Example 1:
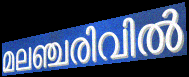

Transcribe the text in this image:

മലഞ്ചരിവിൽ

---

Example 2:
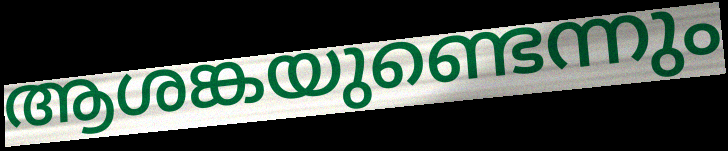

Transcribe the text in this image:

ആശങ്കയുണ്ടെന്നും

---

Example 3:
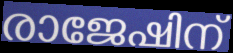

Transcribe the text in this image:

രാജേഷിന്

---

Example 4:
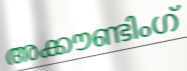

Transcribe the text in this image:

അക്കൗണ്ടിംഗ്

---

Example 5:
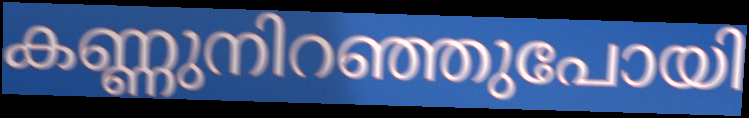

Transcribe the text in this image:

കണ്ണുനിറഞ്ഞുപോയി